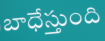
బాధేస్తుంది